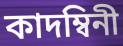
কাদম্বিনী